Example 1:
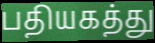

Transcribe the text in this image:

பதியகத்து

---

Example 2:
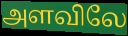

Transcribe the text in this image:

அளவிலே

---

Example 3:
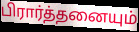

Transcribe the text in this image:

பிரார்த்தனையும்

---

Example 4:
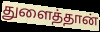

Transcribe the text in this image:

துளைத்தான்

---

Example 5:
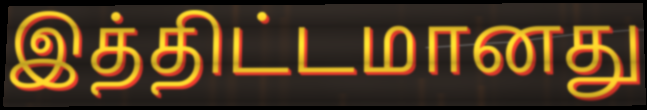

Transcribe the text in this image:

இத்திட்டமானது